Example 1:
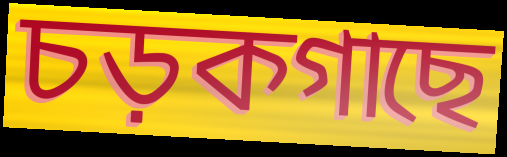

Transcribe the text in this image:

চড়কগাছে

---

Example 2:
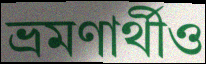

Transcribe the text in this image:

ভ্রমণার্থীও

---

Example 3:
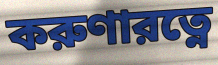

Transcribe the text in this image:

করুণারত্নে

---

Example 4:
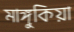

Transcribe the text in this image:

মাঙ্গুকিয়া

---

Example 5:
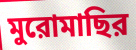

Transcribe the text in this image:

মুরোমাছির